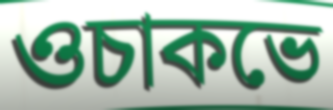
ওচাকভে